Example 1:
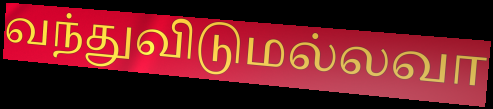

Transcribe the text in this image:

வந்துவிடுமல்லவா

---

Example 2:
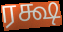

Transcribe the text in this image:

ரக்ஷ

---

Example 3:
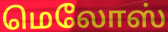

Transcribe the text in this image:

மெலோஸ்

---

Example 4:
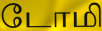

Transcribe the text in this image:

டோமி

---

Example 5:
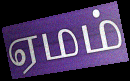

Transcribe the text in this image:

ஏமம்